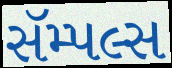
સૅમ્પલ્સ